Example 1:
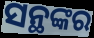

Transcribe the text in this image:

ସନ୍ଥଙ୍କର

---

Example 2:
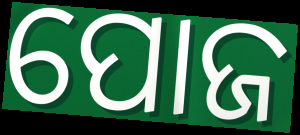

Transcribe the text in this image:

ପୋଜ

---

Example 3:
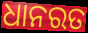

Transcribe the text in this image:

ଧାନରତ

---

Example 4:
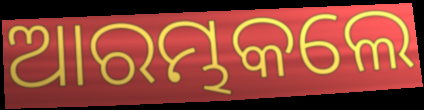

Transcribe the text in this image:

ଆରମ୍ଭକଲେ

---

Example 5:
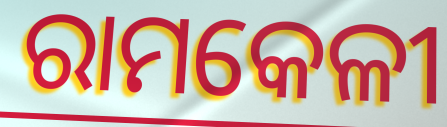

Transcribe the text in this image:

ରାମକେଳୀ